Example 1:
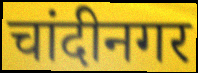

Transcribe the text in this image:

चांदीनगर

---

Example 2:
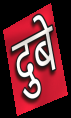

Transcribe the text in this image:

दुबे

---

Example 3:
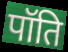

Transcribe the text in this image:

पॉति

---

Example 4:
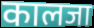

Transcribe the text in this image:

कालजा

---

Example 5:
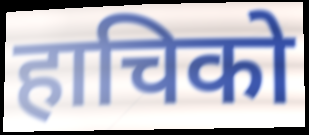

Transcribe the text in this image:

हाचिको